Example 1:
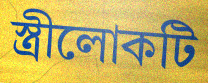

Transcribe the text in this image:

স্ত্রীলোকটি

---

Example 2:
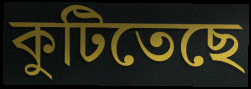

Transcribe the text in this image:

কুটিতেছে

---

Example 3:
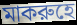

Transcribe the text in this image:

মাকরুহে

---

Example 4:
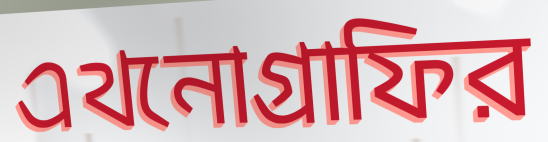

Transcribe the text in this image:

এথনোগ্রাফির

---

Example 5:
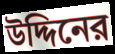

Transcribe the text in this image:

উদ্দিনের